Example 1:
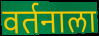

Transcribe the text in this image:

वर्तनाला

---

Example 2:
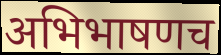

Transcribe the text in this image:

अभिभाषणच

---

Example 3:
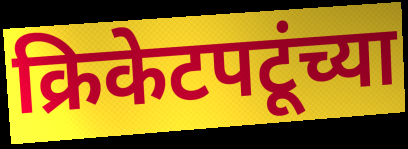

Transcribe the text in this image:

क्रिकेटपटूंच्या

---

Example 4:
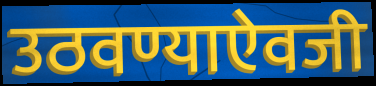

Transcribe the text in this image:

उठवण्याऐवजी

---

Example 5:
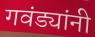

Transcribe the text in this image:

गवंड्यांनी